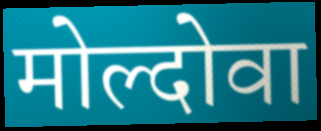
मोल्दोवा